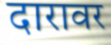
दारावर